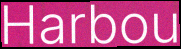
Harbou